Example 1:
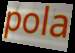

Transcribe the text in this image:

pola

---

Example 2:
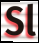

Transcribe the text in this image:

Sl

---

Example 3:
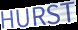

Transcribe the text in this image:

HURST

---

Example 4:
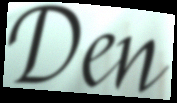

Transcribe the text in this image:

Den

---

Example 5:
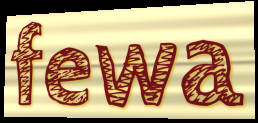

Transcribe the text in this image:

fewa